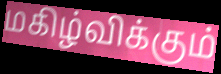
மகிழ்விக்கும்